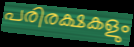
പരിരക്ഷകളും